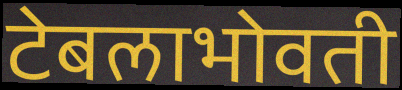
टेबलाभोवती